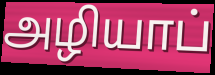
அழியாப்